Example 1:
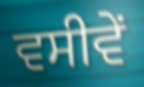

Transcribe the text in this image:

ਵਸੀਵੇਂ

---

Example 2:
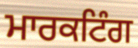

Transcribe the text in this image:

ਮਾਰਕਟਿੰਗ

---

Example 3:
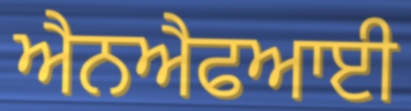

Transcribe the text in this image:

ਐਨਐਫਆਈ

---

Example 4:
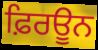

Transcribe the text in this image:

ਫ਼ਿਰਊਨ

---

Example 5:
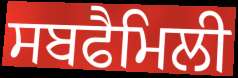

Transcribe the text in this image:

ਸਬਫੈਮਿਲੀ